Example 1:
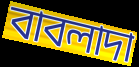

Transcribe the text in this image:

বাবলাদা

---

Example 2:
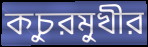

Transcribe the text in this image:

কচুরমুখীর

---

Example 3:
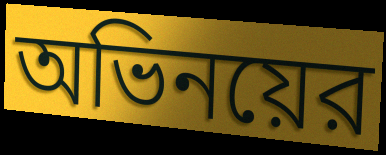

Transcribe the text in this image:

অভিনয়ের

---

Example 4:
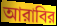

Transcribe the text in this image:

আরাবির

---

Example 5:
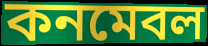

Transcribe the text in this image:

কনমেবল